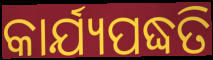
କାର୍ଯ୍ୟପଦ୍ଧତି